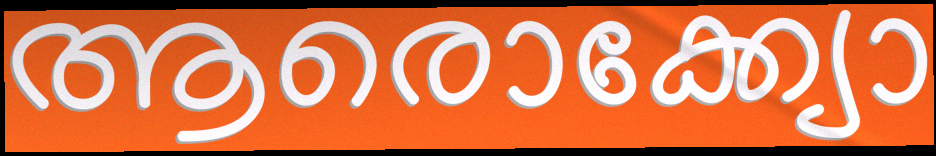
ആരൊക്ക്യോ